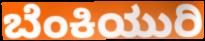
ಬೆಂಕಿಯುರಿ